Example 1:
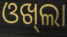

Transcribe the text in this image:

ଓଖ୍‌ଲା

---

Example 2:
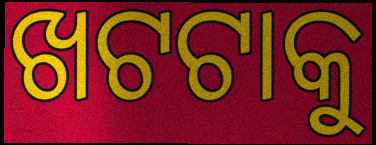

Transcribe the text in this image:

ଖଟଟାକୁ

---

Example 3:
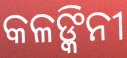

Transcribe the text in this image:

କଳଙ୍କିନୀ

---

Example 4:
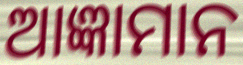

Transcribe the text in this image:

ଆଜ୍ଞାମାନ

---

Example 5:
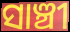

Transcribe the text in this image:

ସାଞ୍ଚୀ